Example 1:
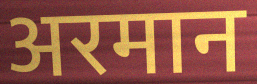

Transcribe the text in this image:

अरमान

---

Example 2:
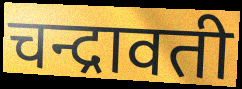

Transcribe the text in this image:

चन्द्रावती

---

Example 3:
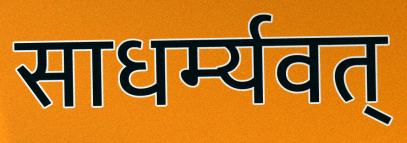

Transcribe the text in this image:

साधर्म्यवत्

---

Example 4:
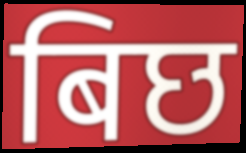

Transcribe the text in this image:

बिछ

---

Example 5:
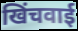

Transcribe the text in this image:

खिंचवाई